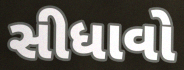
સીધાવો